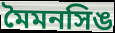
মৈমনসিঙ